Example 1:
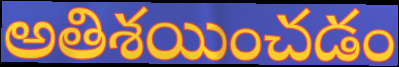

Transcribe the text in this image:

అతిశయించడం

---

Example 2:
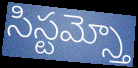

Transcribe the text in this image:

సిస్టమ్స్తో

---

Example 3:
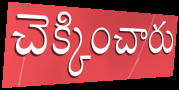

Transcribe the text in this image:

చెక్కించారు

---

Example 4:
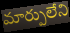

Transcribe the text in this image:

మార్పులేని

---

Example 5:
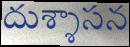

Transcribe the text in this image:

దుశ్శాసన